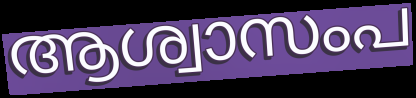
ആശ്വാസംപ